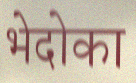
भेदोका